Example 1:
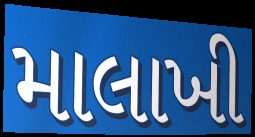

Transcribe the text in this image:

માલાખી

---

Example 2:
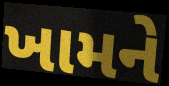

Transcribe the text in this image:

ખામને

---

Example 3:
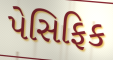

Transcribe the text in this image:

પેસિફિક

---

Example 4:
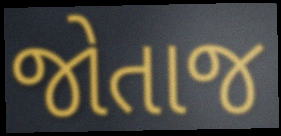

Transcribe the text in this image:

જોતાજ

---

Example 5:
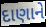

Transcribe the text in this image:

દાણાને